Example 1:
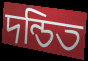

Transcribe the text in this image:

দন্ডিত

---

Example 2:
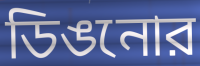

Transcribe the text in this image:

ডিঙনোর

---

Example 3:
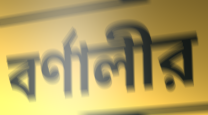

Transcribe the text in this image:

বর্ণালীর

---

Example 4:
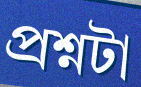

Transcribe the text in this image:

প্রশ্নটা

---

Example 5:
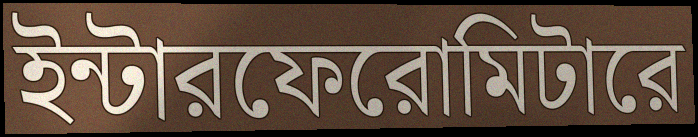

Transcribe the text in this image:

ইন্টারফেরোমিটারে